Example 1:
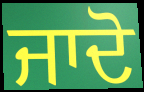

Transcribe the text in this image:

ਜਾਦੋ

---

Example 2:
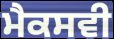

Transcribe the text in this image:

ਮੈਕਸਵੀ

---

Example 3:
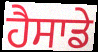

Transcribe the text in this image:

ਹੈਸਾਡੇ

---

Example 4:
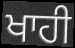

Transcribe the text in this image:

ਖਾਹੀ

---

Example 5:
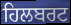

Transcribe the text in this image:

ਹਿਲਬਰਟ